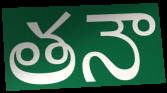
తనౌ